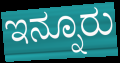
ಇನ್ನೂರು